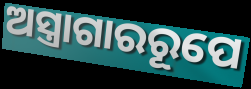
ଅସ୍ତ୍ରାଗାରରୂପେ